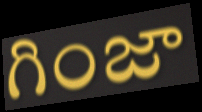
గింజా